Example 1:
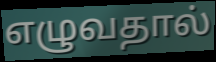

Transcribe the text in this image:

எழுவதால்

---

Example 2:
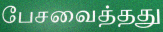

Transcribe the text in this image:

பேசவைத்தது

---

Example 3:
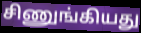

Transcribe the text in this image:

சிணுங்கியது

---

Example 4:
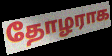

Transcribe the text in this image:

தோழராக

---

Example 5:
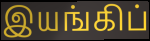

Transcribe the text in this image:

இயங்கிப்